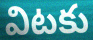
విటకు